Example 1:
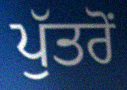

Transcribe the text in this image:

ਪੁੱਤਰੋਂ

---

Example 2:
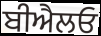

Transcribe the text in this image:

ਬੀਐਲਓ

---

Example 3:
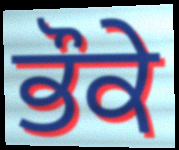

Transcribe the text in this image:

ਭੌਕੇ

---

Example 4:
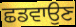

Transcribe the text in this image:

ਛਡਵਾਉਣ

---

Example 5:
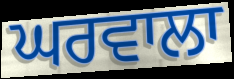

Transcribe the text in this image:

ਘਰਵਾਲਾ